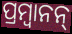
ପ୍ରମ୍ବାନନ୍